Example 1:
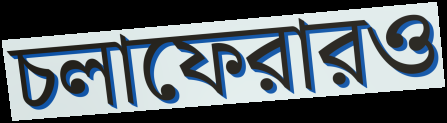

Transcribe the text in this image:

চলাফেরারও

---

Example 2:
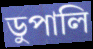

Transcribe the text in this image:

ডুপালি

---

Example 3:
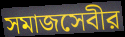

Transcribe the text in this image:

সমাজসেবীর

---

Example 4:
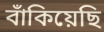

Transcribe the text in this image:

বাঁকিয়েছি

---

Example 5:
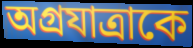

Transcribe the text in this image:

অগ্রযাত্রাকে